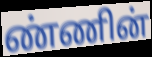
ண்ணின்